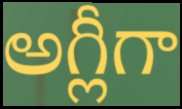
అగ్లీగా